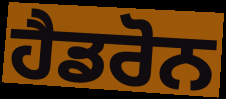
ਹੈਡਰੋਨ